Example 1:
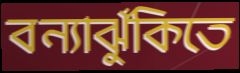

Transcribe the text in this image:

বন্যাঝুঁকিতে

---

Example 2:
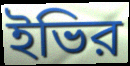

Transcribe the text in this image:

ইভির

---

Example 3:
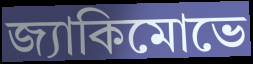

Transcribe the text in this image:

জ্যাকিমোভে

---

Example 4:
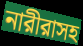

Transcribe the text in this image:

নারীরাসহ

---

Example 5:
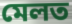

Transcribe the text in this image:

মেলত